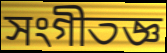
সংগীতজ্ঞ